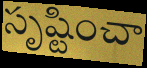
సృష్టించా